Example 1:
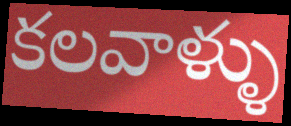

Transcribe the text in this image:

కలవాళ్ళు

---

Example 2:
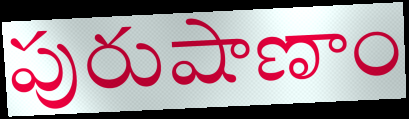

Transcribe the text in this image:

పురుషాణాం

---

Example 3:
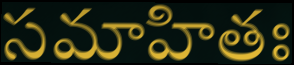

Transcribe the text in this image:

సమాహితః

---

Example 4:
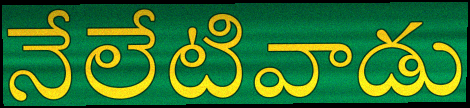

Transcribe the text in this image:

నేలేటివాడు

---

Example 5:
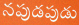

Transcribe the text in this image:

నపుడపుడు